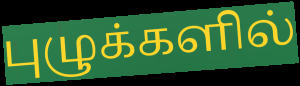
புழுக்களில்